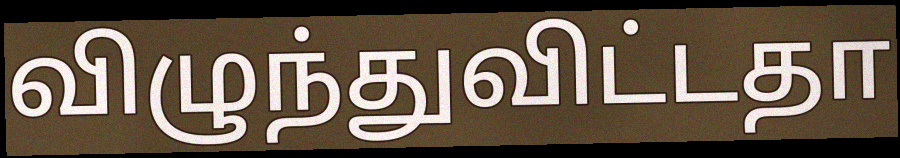
விழுந்துவிட்டதா